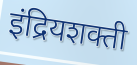
इंद्रियशक्ती